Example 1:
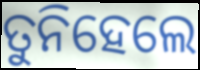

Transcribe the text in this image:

ତୁନିହେଲେ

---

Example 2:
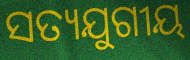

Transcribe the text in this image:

ସତ୍ୟଯୁଗୀୟ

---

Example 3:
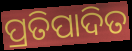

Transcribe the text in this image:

ପ୍ରତିପାଦିତ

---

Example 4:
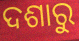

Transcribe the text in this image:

ଦଶାରୁ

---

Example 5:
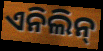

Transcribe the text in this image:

ଏନିଲିନ୍